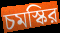
চমস্কির